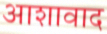
आशावाद